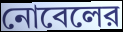
নোবেলের